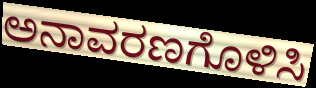
ಅನಾವರಣಗೊಳಿಸಿ